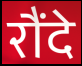
रौंदे